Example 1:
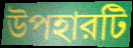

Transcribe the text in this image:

উপহারটি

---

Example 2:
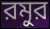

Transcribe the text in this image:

রমুর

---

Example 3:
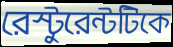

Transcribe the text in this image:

রেস্টুরেন্টটিকে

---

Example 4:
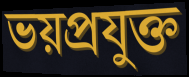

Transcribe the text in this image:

ভয়প্রযুক্ত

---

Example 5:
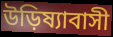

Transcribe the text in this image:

উড়িষ্যাবাসী